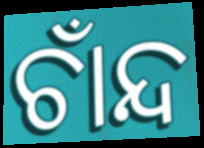
ଚାଁନ୍ଦ